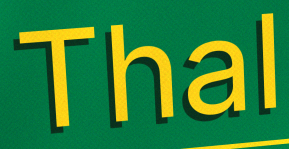
Thal